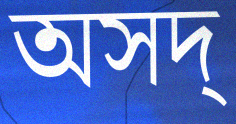
অসদ্